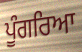
ਪੂੰਗਰਿਆ